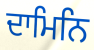
ਦਾਮਿਨਿ